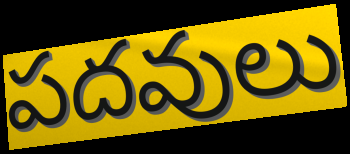
పదవులు